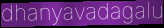
dhanyavadagalu